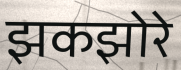
झकझोरे